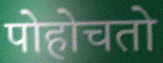
पोहोचतो